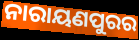
ନାରାୟଣପୁରର